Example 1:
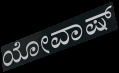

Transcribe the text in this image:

ಯೋವಾಷ್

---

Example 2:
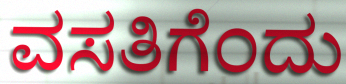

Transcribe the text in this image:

ವಸತಿಗೆಂದು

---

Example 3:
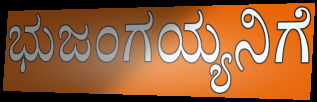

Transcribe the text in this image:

ಭುಜಂಗಯ್ಯನಿಗೆ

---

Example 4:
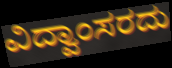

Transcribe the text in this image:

ವಿದ್ವಾಂಸರದು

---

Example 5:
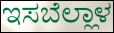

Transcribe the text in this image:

ಇಸಬೆಲ್ಲಾಳ